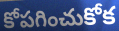
కోపగించుకోక